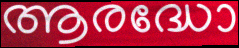
ആരദ്ധോ